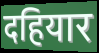
दहियार